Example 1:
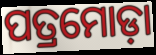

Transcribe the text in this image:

ପତ୍ରମୋଡ଼ା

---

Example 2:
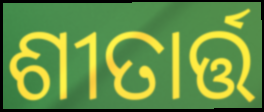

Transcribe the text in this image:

ଶୀତାର୍ତ୍ତ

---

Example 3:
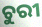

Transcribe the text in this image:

ଚୁରୀ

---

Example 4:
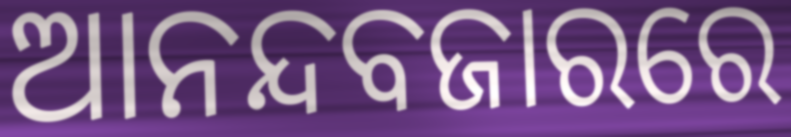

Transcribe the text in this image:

ଆନନ୍ଦବଜାରରେ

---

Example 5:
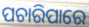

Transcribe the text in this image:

ପଚାରିପାରେ